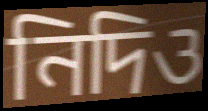
নিদিও